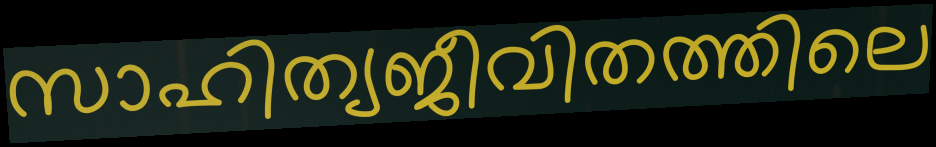
സാഹിത്യജീവിതത്തിലെ